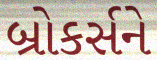
બ્રોકર્સને